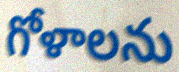
గోళాలను